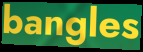
bangles